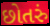
છોતરું